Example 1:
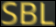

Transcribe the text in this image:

SBL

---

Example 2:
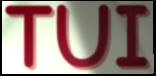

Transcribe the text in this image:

TUI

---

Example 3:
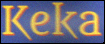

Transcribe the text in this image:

Keka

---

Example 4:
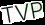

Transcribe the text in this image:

TVP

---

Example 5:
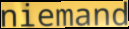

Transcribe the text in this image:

niemand